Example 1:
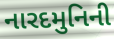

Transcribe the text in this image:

નારદમુનિની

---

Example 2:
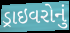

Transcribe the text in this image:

ડ્રાઇવરોનું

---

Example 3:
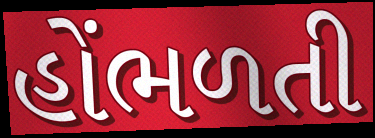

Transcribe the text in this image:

હોંભળતી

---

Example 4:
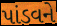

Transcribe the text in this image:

પાંડવને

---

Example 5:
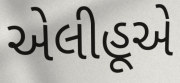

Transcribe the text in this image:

એલીહૂએ